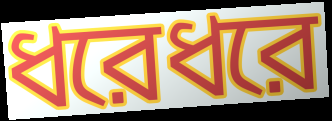
ধরেধরে